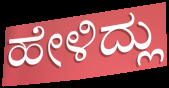
ಹೇಳಿದ್ಲು